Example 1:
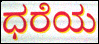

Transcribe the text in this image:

ಧರೆಯ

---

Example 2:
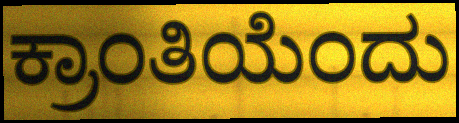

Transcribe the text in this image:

ಕ್ರಾಂತಿಯೆಂದು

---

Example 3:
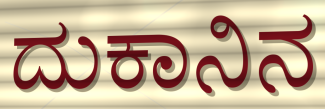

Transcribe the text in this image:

ದುಕಾನಿನ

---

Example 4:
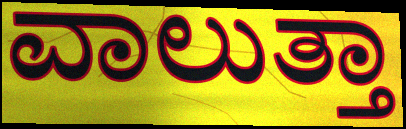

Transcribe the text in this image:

ವಾಲುತ್ತಾ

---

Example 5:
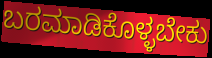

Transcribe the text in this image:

ಬರಮಾಡಿಕೊಳ್ಳಬೇಕು